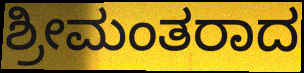
ಶ್ರೀಮಂತರಾದ